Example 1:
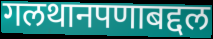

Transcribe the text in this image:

गलथानपणाबद्दल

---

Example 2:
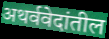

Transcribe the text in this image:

अथर्ववेदांतील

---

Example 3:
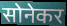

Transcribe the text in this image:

सोनेकर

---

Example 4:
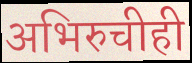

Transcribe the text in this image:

अभिरुचीही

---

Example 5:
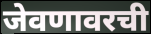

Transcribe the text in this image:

जेवणावरची